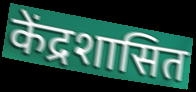
केंद्रशासित